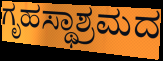
ಗೃಹಸ್ಥಾಶ್ರಮದ